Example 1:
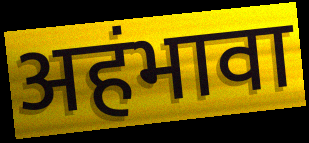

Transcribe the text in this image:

अहंभावा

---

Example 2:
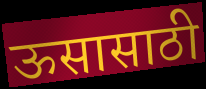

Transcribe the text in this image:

ऊसासाठी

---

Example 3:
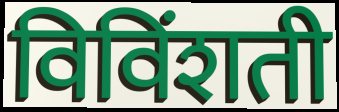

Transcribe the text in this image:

विविंशती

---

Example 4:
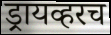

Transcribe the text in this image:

ड्रायव्हरच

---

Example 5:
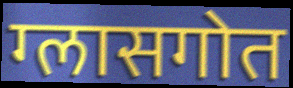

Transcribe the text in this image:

ग्लासगोत